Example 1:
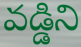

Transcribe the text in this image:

వడ్డిని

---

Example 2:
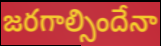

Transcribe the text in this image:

జరగాల్సిందేనా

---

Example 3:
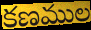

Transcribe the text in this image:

కణముల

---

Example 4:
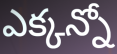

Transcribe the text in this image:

ఎక్కన్నో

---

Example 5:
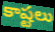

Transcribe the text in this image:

కాష్టలు